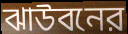
ঝাউবনের